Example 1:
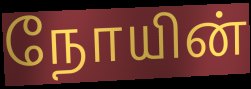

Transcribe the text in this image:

நோயின்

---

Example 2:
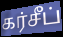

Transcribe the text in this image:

கர்சீப்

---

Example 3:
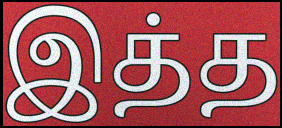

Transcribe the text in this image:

இத்த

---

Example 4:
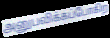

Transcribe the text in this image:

அனுபவிக்கப்போகிற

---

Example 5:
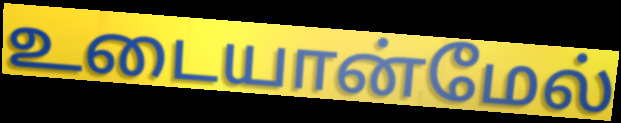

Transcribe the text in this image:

உடையான்மேல்